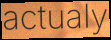
actualy